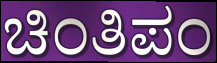
ಚಿಂತಿಪಂ